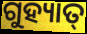
ଗୁହ୍ୟାତ୍